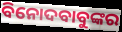
ବିନୋଦବାବୁଙ୍କର